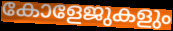
കോളേജുകളും